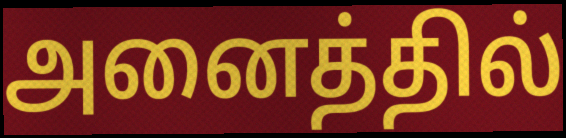
அனைத்தில்